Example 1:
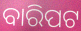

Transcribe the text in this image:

ବାରିପଟ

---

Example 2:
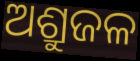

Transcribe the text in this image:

ଅଶ୍ରୁଜଳ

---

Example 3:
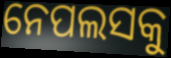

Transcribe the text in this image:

ନେପଲସକୁ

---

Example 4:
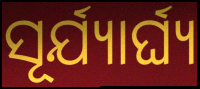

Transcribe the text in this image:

ସୂର୍ଯ୍ୟାର୍ଘ୍ୟ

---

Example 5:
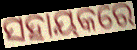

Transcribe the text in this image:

ସହାୟକରେ